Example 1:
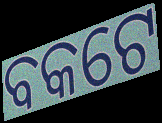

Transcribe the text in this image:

ବକଟେ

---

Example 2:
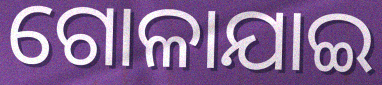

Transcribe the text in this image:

ଗୋଳାଯାଇ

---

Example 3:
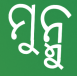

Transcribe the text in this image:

ମୁନ୍ମୁ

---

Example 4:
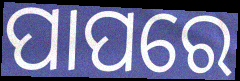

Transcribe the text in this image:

ପାପରେ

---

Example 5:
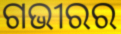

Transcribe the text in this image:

ଗଭୀରର